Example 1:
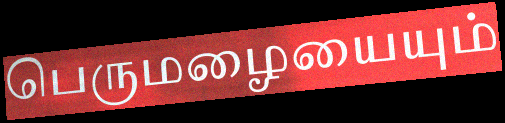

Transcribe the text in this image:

பெருமழையையும்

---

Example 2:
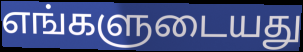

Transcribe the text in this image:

எங்களுடையது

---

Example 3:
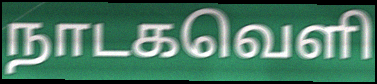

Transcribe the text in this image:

நாடகவெளி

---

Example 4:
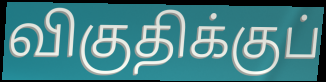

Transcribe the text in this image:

விகுதிக்குப்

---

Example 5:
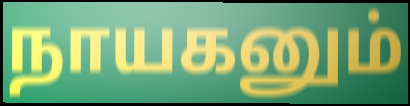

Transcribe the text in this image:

நாயகனும்